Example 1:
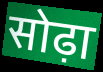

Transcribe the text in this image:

सोढ़ा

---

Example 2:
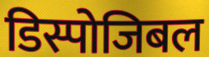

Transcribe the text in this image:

डिस्पोजिबल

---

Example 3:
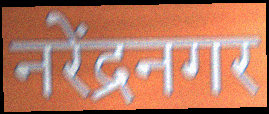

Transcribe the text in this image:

नरेंद्रनगर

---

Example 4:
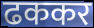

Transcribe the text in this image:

ढककर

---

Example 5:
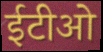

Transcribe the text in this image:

ईटीओ